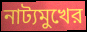
নাট্যমুখের